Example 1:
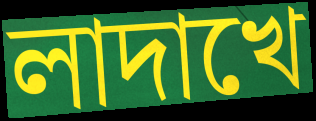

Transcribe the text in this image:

লাদাখে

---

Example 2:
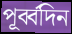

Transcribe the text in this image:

পূর্ব্বদিন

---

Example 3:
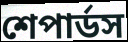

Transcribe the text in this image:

শেপার্ডস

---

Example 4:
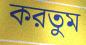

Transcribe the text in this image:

করতুম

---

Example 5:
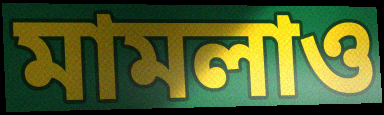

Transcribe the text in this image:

মামলাও